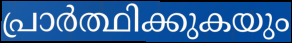
പ്രാർത്ഥിക്കുകയും